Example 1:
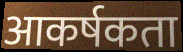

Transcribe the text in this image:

आकर्षकता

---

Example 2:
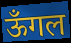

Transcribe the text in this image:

ऊँगल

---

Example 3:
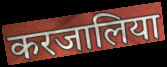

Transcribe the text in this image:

करजालिया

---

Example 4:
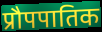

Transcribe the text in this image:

प्रौपपातिक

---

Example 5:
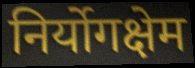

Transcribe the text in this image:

निर्योगक्षेम